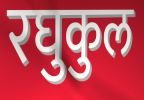
रघुकुल